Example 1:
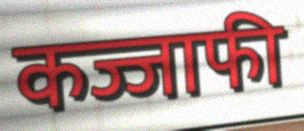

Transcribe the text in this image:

कज्जाफी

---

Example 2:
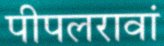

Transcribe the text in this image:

पीपलरावां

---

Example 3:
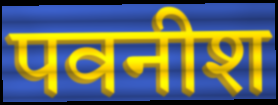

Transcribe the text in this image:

पवनीश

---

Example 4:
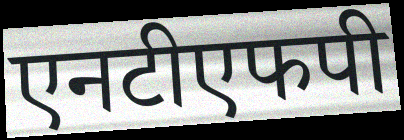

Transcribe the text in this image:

एनटीएफपी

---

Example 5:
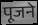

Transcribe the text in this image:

पूजने